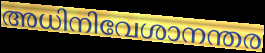
അധിനിവേശാനന്തര